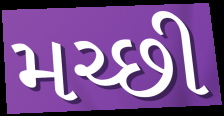
મચ્છી